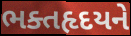
ભક્તહૃદયને